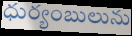
ధుర్యంబులును